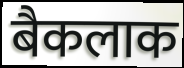
बैकलाक